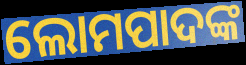
ଲୋମପାଦଙ୍କ